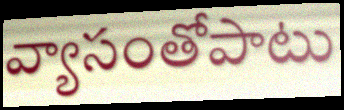
వ్యాసంతోపాటు